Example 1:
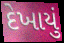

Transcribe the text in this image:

દેખાયું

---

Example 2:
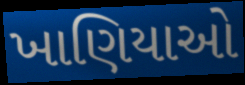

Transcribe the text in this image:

ખાણિયાઓ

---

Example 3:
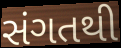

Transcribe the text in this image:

સંગતથી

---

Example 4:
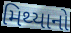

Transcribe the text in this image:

મિથ્યાનો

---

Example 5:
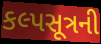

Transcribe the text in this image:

કલ્પસૂત્રની